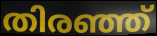
തിരഞ്ഞ്